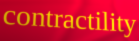
contractility